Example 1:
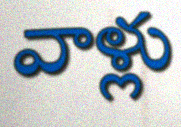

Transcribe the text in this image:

వాళ్లు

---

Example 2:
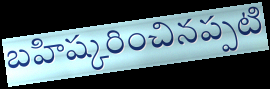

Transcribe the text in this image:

బహిష్కరించినప్పటి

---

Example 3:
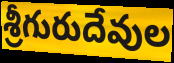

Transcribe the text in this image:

శ్రీగురుదేవుల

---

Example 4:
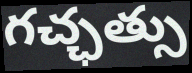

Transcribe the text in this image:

గచ్ఛత్సు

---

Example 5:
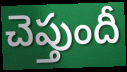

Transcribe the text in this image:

చెప్తుందీ